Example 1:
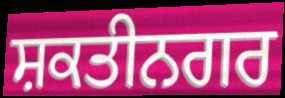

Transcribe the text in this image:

ਸ਼ਕਤੀਨਗਰ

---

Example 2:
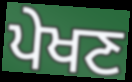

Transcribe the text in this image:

ਪੇਖਣ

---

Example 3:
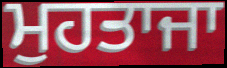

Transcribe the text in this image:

ਮੁਹਤਾਜਾ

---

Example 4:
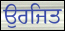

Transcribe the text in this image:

ਉਰਜਿਤ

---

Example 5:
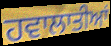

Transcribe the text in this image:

ਹਵਾਲਾਤੀਆਂ